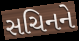
સચિનને